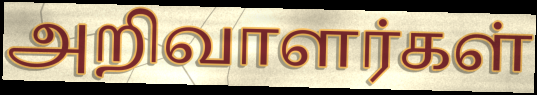
அறிவாளர்கள்